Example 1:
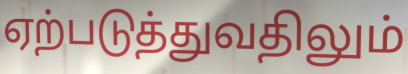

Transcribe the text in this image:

ஏற்படுத்துவதிலும்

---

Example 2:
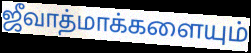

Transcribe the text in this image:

ஜீவாத்மாக்களையும்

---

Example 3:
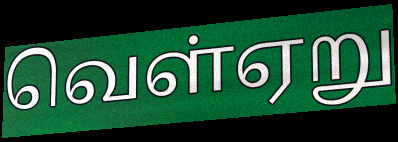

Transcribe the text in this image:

வெள்ஏறு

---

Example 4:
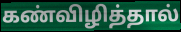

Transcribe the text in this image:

கண்விழித்தால்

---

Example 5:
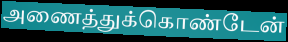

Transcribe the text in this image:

அணைத்துக்கொண்டேன்